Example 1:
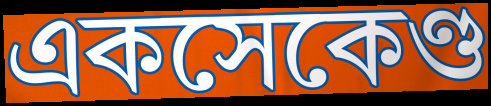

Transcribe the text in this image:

একসেকেণ্ড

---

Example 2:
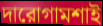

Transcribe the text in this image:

দারোগামশাই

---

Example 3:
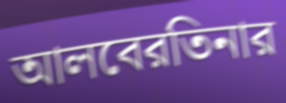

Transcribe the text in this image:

আলবেরতিনার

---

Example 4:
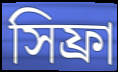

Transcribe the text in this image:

সিফ্রা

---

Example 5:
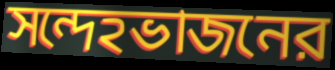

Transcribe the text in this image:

সন্দেহভাজনের